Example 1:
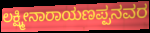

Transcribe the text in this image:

ಲಕ್ಷ್ಮೀನಾರಾಯಣಪ್ಪನವರ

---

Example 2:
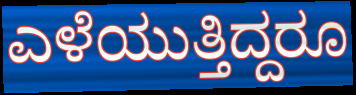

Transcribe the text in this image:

ಎಳೆಯುತ್ತಿದ್ದರೂ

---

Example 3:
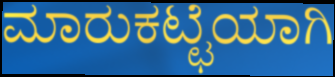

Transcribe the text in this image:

ಮಾರುಕಟ್ಟೆಯಾಗಿ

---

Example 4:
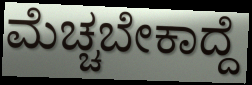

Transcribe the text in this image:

ಮೆಚ್ಚಬೇಕಾದ್ದೆ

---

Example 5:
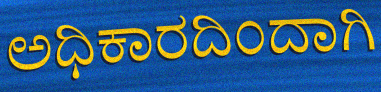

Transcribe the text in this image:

ಅಧಿಕಾರದಿಂದಾಗಿ